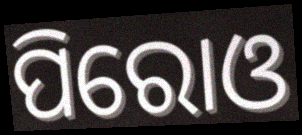
ପିରୋଓ